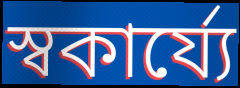
স্বকার্য্যে